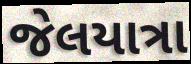
જેલયાત્રા